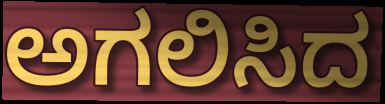
ಅಗಲಿಸಿದ